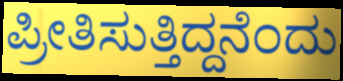
ಪ್ರೀತಿಸುತ್ತಿದ್ದನೆಂದು